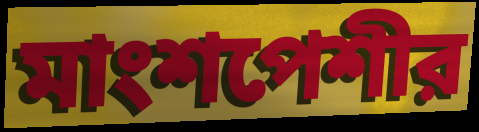
মাংশপেশীর